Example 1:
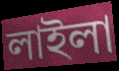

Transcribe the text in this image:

লাইলা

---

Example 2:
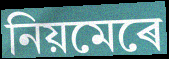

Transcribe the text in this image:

নিয়মেৰে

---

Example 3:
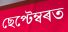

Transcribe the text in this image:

ছেপ্টেম্বৰত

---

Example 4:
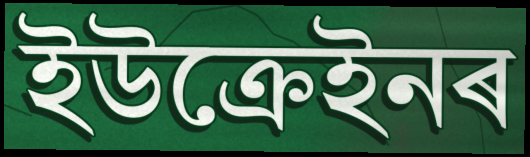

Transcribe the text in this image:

ইউক্ৰেইনৰ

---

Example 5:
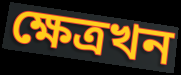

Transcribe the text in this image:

ক্ষেত্ৰখন